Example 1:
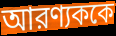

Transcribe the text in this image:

আরণ্যককে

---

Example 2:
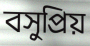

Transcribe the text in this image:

বসুপ্রিয়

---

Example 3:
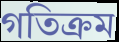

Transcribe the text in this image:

গতিক্রম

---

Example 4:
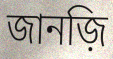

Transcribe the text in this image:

জানজ়ি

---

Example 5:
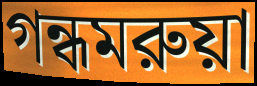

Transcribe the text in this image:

গন্ধমরুয়া